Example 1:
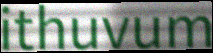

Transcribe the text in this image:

ithuvum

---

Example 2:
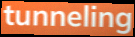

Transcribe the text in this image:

tunneling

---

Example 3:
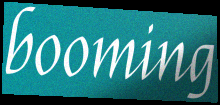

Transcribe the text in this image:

booming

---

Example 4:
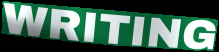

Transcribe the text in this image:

WRITING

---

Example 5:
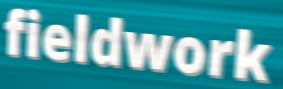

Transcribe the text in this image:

fieldwork